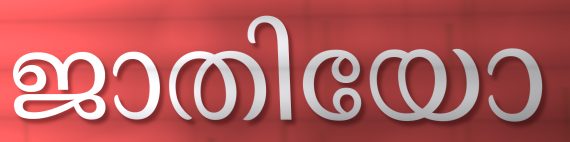
ജാതിയോ